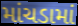
માંચડામાં